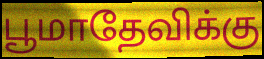
பூமாதேவிக்கு